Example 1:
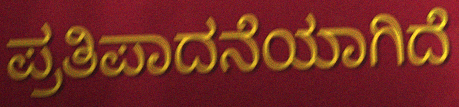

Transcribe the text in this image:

ಪ್ರತಿಪಾದನೆಯಾಗಿದೆ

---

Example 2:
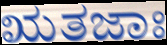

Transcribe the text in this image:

ಋತಜಾಃ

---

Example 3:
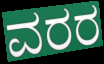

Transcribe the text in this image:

ವರರ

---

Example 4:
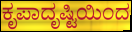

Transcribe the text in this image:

ಕೃಪಾದೃಷ್ಟಿಯಿಂದ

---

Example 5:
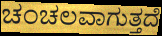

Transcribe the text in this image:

ಚಂಚಲವಾಗುತ್ತದೆ